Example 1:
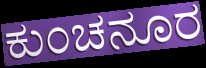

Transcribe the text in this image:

ಕುಂಚನೂರ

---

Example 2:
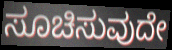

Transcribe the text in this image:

ಸೂಚಿಸುವುದೇ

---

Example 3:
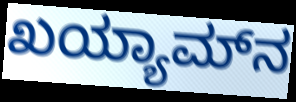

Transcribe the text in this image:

ಖಯ್ಯಾಮ್‌ನ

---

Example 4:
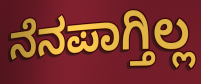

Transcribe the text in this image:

ನೆನಪಾಗ್ತಿಲ್ಲ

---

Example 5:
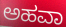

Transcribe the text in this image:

ಅಹವಾ